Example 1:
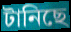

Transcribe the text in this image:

টানিছে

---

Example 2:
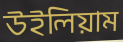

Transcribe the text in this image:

উইলিয়াম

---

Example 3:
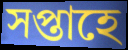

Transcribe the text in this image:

সপ্তাহে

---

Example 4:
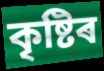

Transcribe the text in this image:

কৃষ্টিৰ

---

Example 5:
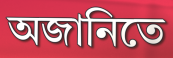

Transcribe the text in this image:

অজানিতে